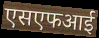
एसएफआई